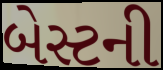
બેસ્ટની